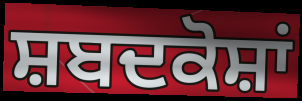
ਸ਼ਬਦਕੋਸ਼ਾਂ